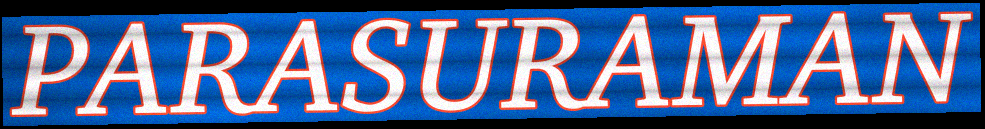
PARASURAMAN